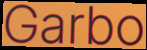
Garbo